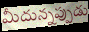
మీదున్నప్పుడు